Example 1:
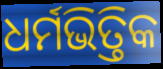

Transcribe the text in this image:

ଧର୍ମଭିତ୍ତିକ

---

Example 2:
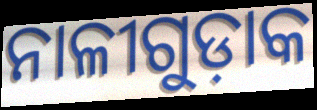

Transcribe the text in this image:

ନାଳୀଗୁଡ଼ାକ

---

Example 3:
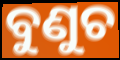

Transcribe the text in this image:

ବୁଣୁଚ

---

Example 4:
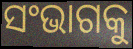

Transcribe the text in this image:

ସଂଭାଗକୁ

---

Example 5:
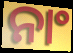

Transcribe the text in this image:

ନାଂ